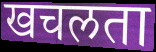
खचलता